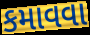
કમાવવા